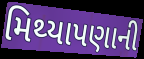
મિથ્યાપણાની